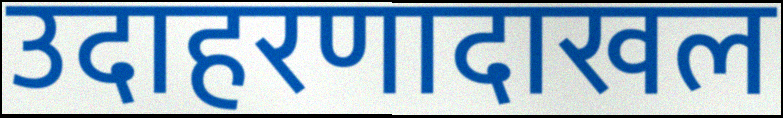
उदाहरणादाखल